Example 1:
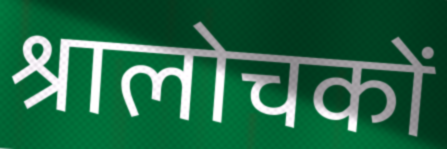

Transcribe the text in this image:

श्रालोचकों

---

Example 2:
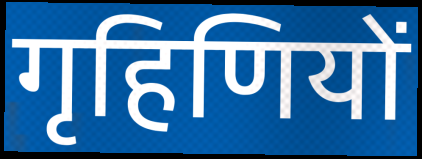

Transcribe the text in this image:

गृहिणियों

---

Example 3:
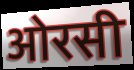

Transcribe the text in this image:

ओरसी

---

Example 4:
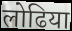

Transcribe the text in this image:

लोढिया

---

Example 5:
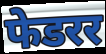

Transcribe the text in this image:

फेडरर